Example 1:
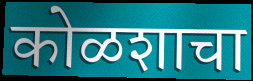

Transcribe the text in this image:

कोळशाचा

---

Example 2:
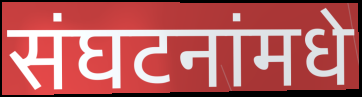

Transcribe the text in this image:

संघटनांमधे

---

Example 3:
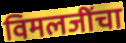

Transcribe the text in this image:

विमलजींचा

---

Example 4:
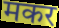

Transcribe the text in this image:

मकर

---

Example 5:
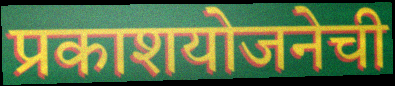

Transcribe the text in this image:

प्रकाशयोजनेची